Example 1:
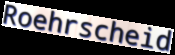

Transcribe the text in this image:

Roehrscheid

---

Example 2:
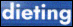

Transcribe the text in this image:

dieting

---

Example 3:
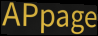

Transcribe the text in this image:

APpage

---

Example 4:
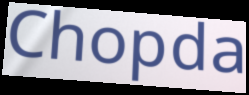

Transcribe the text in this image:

Chopda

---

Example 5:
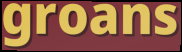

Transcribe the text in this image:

groans